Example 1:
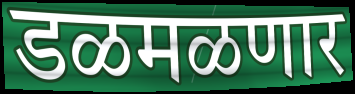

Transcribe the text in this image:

डळमळणार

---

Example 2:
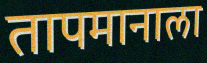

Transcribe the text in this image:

तापमानाला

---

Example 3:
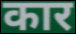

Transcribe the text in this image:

कार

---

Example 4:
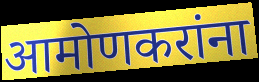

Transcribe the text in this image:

आमोणकरांना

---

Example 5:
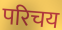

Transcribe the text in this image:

परिचय